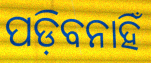
ପଡ଼ିବନାହିଁ